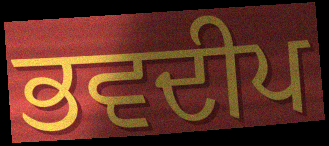
ਭਵਦੀਪ